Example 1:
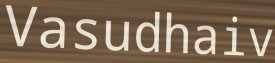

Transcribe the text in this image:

Vasudhaiv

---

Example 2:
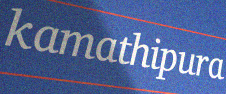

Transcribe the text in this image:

kamathipura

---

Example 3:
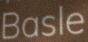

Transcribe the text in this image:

Basle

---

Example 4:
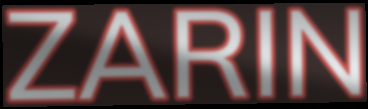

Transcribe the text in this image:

ZARIN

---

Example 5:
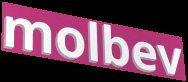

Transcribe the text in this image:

molbev